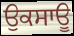
ਉਕਸਾਊ